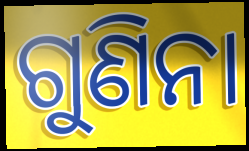
ଗୁଣିନା